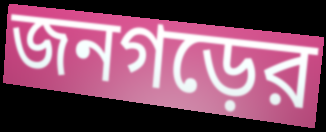
জনগড়ের